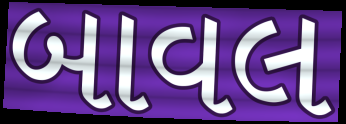
બાવલ